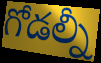
గోడల్నీ